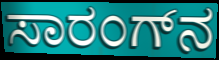
ಸಾರಂಗ್‌ನ